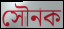
সৌনক